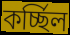
কর্চ্ছিল